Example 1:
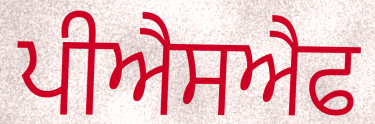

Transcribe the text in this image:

ਪੀਐਸਐਫ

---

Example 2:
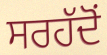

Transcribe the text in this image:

ਸਰਹੱਦੋਂ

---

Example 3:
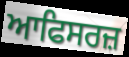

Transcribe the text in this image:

ਆਫਿਸਰਜ਼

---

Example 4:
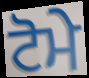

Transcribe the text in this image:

ਟੋਮੇ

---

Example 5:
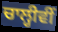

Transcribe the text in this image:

ਚਾਲ੍ਹੀਵੀਂ